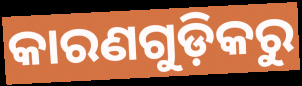
କାରଣଗୁଡ଼ିକରୁ